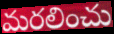
మరలించు